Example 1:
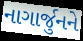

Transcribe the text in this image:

નાગાર્જુનને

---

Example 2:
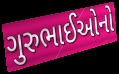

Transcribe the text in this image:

ગુરુભાઈઓનો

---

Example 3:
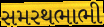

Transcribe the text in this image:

સમરથભાભી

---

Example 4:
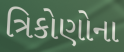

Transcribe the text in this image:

ત્રિકોણોના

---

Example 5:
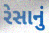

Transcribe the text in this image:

રેસાનું